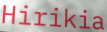
Hirikia